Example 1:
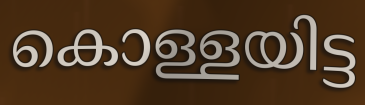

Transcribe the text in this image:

കൊള്ളയിട്ട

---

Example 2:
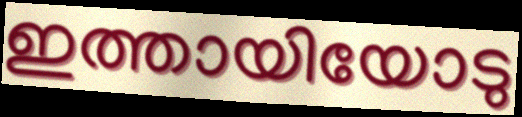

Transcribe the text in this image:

ഇത്തായിയോടു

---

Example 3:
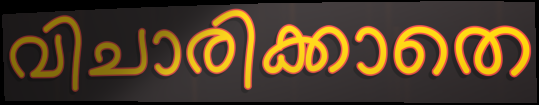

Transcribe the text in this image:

വിചാരിക്കാതെ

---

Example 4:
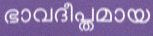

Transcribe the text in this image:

ഭാവദീപ്തമായ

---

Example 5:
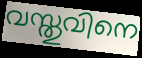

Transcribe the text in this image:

വസ്തുവിനെ